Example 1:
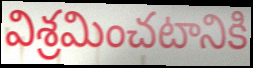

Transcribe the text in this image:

విశ్రమించటానికి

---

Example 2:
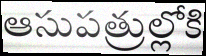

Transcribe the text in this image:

ఆసుపత్రుల్లోకి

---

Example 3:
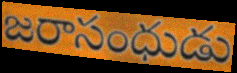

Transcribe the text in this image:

జరాసంధుడు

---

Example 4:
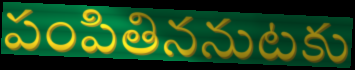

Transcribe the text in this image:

పంపితిననుటకు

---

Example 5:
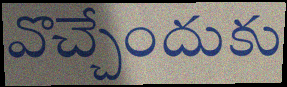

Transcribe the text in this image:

వొచ్చేందుకు